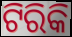
ଟିରିକି